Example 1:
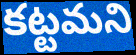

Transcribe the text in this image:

కట్టమని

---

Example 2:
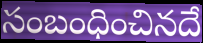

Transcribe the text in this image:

సంబంధించినదే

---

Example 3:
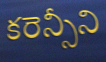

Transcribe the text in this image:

కరెన్సీని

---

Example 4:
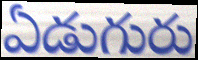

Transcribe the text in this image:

ఏడుగురు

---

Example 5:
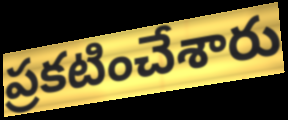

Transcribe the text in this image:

ప్రకటించేశారు